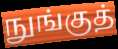
நுங்குத்